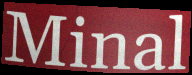
Minal